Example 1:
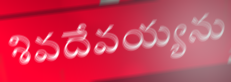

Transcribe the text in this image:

శివదేవయ్యను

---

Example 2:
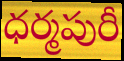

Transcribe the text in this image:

ధర్మపురీ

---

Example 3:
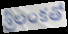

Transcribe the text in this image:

శ్రీలంకతో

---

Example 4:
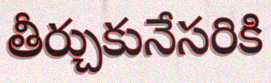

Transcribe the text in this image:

తీర్చుకునేసరికి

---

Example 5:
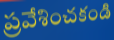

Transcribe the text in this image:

ప్రవేశించకండి